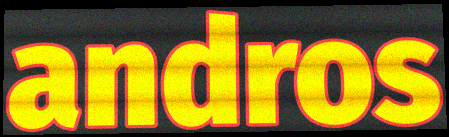
andros